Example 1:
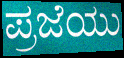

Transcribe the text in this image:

ಪ್ರಜೆಯು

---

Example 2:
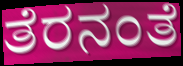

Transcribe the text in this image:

ತೆರನಂತೆ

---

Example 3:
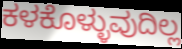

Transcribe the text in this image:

ಕಳಕೊಳ್ಳುವುದಿಲ್ಲ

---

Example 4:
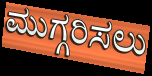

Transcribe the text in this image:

ಮುಗ್ಗರಿಸಲು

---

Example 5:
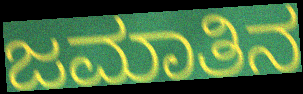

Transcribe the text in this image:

ಜಮಾತಿನ